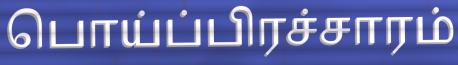
பொய்ப்பிரச்சாரம்